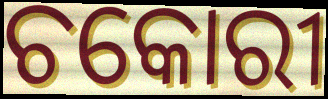
ଚକୋରୀ